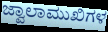
ಜ್ವಾಲಾಮುಖಿಗಳ